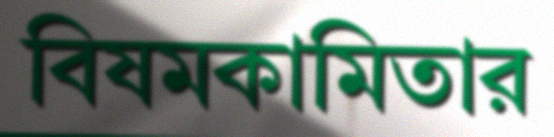
বিষমকামিতার